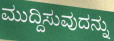
ಮುದ್ದಿಸುವುದನ್ನು